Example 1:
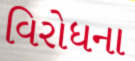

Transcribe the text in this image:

વિરોધના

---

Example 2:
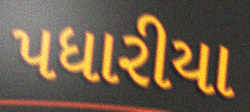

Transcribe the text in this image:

પધારીયા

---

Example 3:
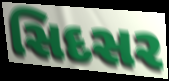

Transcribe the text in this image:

સિદસર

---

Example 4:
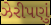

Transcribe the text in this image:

ઝેરીપણું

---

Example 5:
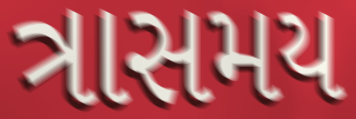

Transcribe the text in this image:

ત્રાસમય